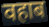
वहाब